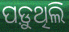
ପଡ଼ୁଥିଲି